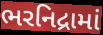
ભરનિદ્રામાં